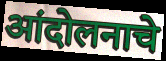
आंदोलनाचे